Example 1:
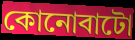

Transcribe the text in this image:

কোনোবাটো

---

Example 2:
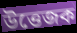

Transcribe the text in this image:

উত্তেজক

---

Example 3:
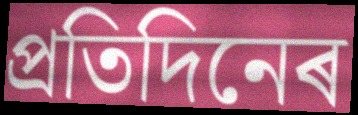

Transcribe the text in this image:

প্ৰতিদিনেৰ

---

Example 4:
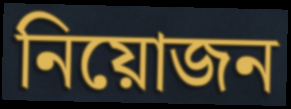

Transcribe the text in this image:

নিয়োজন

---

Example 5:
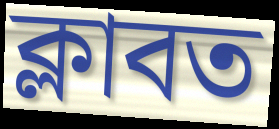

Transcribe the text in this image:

ক্লাবত